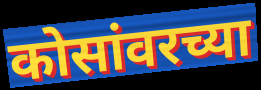
कोसांवरच्या